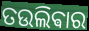
ତଉଲିଵାର